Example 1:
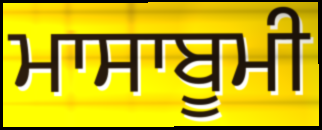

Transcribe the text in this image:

ਮਾਸਾਬੂਮੀ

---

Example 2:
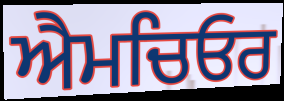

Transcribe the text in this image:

ਐਮਚਿਓਰ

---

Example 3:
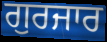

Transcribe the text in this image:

ਗੁਰਜਾਰ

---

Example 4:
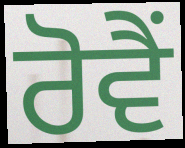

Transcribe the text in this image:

ਰੋਵੈਂ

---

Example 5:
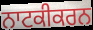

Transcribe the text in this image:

ਨਾਟਕੀਕਰਨ